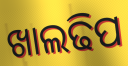
ଖାଲଢିପ